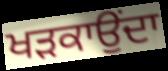
ਖੜਕਾਉਂਦਾ